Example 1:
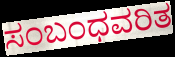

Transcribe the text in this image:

ಸಂಬಂಧವರಿತ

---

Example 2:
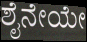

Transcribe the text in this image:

ಶೈನೇಯೇ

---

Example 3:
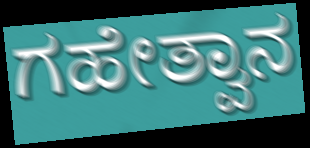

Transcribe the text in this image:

ಗಹೇತ್ವಾನ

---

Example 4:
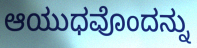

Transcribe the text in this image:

ಆಯುಧವೊಂದನ್ನು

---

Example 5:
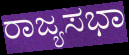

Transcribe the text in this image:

ರಾಜ್ಯಸಭಾ